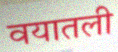
वयातली